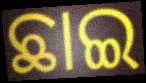
ଛାଇ